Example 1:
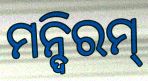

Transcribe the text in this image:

ମନ୍ଦିରମ୍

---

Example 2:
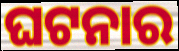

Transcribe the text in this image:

ଘଟନାର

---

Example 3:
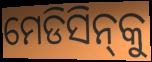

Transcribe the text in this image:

ମେଡିସିନ୍‌କୁ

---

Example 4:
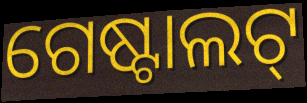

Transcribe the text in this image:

ଗେଷ୍ଟାଲଟ୍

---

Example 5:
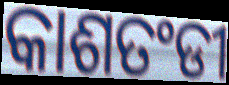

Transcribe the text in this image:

କାଶତଂଡୀ